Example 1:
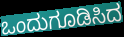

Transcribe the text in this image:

ಒಂದುಗೂಡಿಸಿದ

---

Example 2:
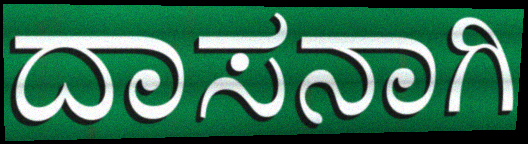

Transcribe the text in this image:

ದಾಸನಾಗಿ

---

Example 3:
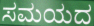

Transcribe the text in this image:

ಸಮಯದ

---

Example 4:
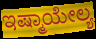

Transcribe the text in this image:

ಇಷ್ಮಾಯೇಲ್ಯ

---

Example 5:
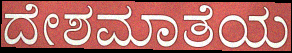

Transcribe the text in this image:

ದೇಶಮಾತೆಯ